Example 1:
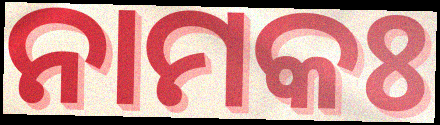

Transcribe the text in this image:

ନାମକଃ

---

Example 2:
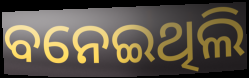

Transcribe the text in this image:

ବନେଇଥିଲି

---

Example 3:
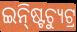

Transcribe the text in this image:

ଇନ୍ଷ୍ଟିଚ୍ୟୁଟ୍ର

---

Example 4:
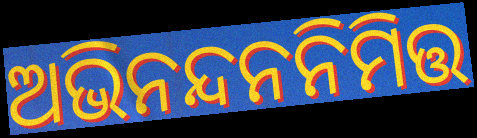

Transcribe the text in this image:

ଅଭିନନ୍ଦନନିମିତ୍ତ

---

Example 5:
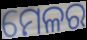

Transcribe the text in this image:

ମେଳର